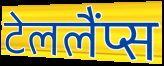
टेललैंप्स